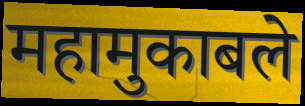
महामुकाबले